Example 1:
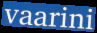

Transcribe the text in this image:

vaarini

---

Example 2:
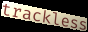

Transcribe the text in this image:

trackless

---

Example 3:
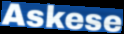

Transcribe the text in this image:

Askese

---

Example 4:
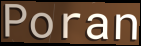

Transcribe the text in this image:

Poran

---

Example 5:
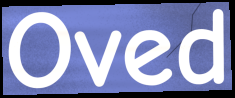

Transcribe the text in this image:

Oved